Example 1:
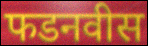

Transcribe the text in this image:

फडनवीस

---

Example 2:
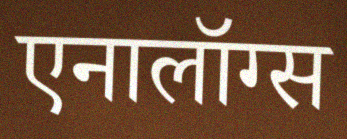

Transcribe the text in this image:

एनालॉग्स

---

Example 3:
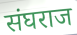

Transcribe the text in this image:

संघराज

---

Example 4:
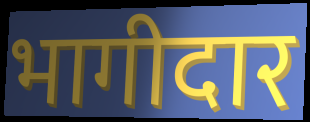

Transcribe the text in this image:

भागीदार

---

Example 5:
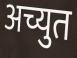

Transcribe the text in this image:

अच्‍युत